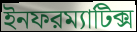
ইনফরম্যাটিক্স